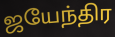
ஜயேந்திர